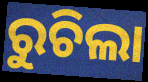
ରୁଚିଲା